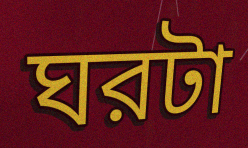
ঘরটা